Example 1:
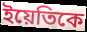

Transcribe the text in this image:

ইয়েতিকে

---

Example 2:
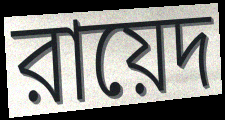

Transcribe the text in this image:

রায়েদ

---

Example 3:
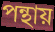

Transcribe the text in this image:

পন্থায়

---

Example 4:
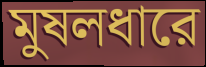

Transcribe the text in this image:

মুষলধারে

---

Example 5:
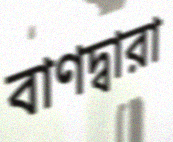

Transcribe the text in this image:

বাণদ্বারা